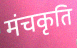
मंचकृति